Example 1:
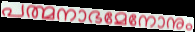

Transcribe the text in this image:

പത്മനാഭമേനോനും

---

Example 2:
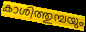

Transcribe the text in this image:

കാശിത്തുമ്പയും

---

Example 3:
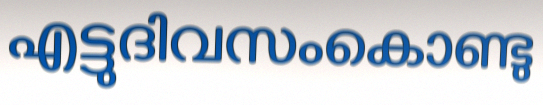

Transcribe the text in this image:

എട്ടുദിവസംകൊണ്ടു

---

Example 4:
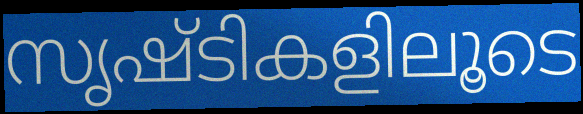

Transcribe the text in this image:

സൃഷ്ടികളിലൂടെ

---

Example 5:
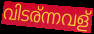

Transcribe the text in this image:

വിടര്ന്നവള്